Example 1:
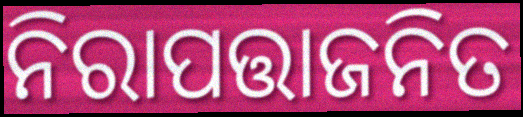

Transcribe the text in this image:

ନିରାପତ୍ତାଜନିତ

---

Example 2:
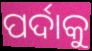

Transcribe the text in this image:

ପର୍ଦାକୁ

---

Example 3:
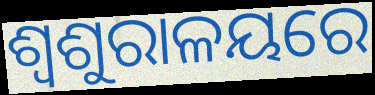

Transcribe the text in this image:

ଶ୍ୱଶୁରାଳୟରେ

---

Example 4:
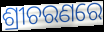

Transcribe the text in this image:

ଶ୍ରୀଚରଣରେ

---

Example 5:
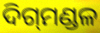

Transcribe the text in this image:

ଦିଗ୍‌ମଣ୍ଡଳ